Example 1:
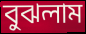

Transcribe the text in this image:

বুঝলাম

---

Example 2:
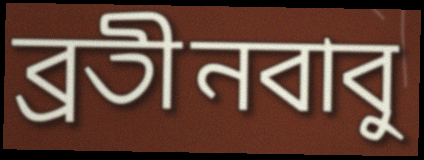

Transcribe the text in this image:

ব্রতীনবাবু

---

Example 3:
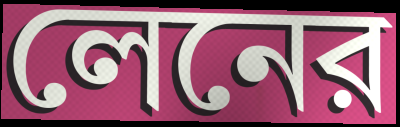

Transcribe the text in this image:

লেনের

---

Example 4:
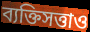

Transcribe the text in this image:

ব্যক্তিসত্তাও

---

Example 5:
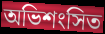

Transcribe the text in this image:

অভিশংসিত